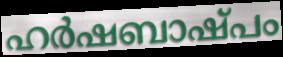
ഹർഷബാഷ്പം